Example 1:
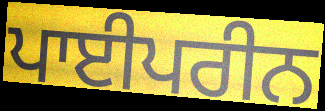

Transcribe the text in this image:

ਪਾਈਪਰੀਨ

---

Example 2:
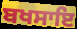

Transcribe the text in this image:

ਬਖਸਾਇ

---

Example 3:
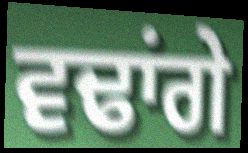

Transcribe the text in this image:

ਵਢਾਂਗੇ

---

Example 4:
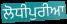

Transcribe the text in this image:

ਲੋਧੀਪੁਰੀਆ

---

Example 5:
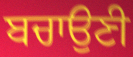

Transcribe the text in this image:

ਬਚਾਉਣੀ